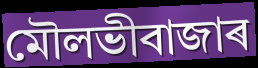
মৌলভীবাজাৰ